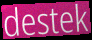
destek